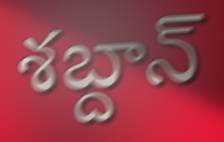
శబ్దాన్